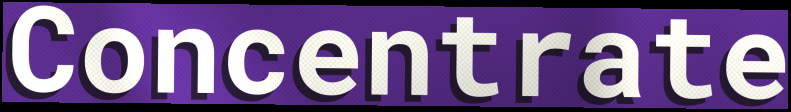
Concentrate